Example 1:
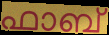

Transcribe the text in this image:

ഫാബ്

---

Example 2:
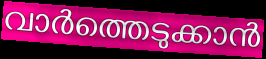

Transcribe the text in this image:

വാർത്തെടുക്കാൻ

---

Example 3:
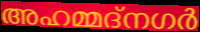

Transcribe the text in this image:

അഹമ്മദ്നഗർ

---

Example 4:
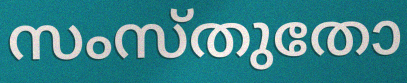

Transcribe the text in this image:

സംസ്തുതോ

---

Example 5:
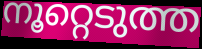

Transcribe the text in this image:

നൂറ്റെടുത്ത